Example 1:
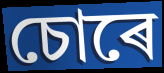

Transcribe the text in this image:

চোৰে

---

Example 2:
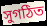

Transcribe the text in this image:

সুগঠিত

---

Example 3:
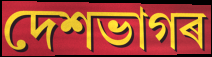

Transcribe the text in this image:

দেশভাগৰ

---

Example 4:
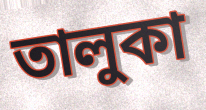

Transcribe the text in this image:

তালুকা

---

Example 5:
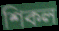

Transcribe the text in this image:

শিকল